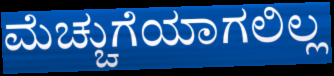
ಮೆಚ್ಚುಗೆಯಾಗಲಿಲ್ಲ